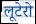
लूटेरो